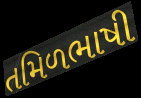
તમિળભાષી